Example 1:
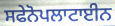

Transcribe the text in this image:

ਸਫੇਨੋਪਲਾਟਾਈਨ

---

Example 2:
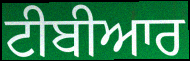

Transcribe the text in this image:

ਟੀਬੀਆਰ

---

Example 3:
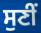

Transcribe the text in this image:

ਸੁਣੀਂ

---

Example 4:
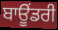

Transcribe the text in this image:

ਬਾਊਂਡਰੀ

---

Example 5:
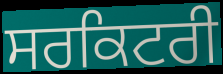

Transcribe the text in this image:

ਸਰਕਿਟਰੀ